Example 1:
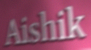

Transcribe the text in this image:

Aishik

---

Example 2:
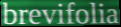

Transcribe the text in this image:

brevifolia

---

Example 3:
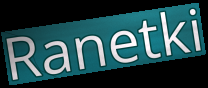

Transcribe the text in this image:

Ranetki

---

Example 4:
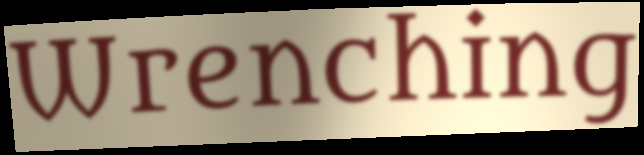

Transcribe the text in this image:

Wrenching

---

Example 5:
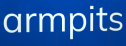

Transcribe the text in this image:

armpits